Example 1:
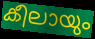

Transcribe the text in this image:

കീലായും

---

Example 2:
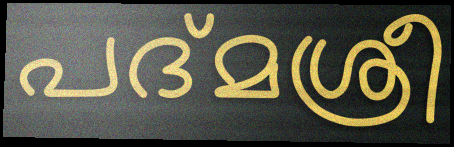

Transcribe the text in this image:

പദ്മശ്രീ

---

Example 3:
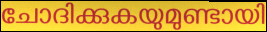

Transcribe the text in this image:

ചോദിക്കുകയുമുണ്ടായി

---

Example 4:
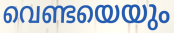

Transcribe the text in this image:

വെണ്ടയെയും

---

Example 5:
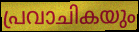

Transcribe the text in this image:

പ്രവാചികയും